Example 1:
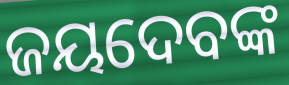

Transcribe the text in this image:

ଜୟଦେବଙ୍କ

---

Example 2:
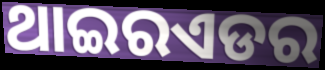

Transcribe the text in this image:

ଥାଇରଏଡର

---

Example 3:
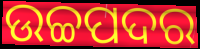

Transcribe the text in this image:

ଉଚ୍ଚପଦର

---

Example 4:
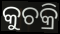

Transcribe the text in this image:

କୁଚକ୍ରି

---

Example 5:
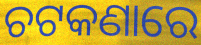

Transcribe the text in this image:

ଚଟକଣାରେ